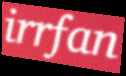
irrfan